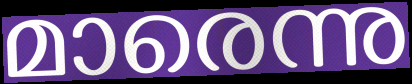
മാരെന്നു